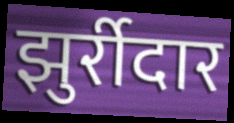
झुर्रीदार